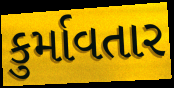
કુર્માવતાર